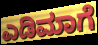
ಎಡಿಮಾಗೆ